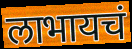
लाभायचं